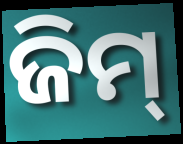
ଜିମ୍